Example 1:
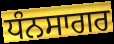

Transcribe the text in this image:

ਧੰਨਸਾਗਰ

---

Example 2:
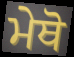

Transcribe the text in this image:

ਮੇਥੋ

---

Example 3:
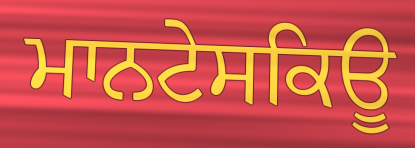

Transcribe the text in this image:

ਮਾਨਟੇਸਕਿਊ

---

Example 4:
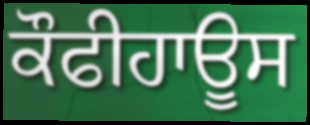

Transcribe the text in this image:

ਕੌਫੀਹਾਊਸ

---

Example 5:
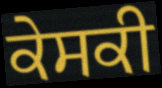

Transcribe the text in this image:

ਕੇਸਕੀ